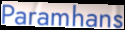
Paramhans